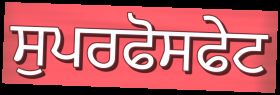
ਸੁਪਰਫੋਸਫੇਟ